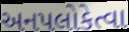
અનપલોકેત્વા